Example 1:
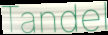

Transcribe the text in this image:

Tandel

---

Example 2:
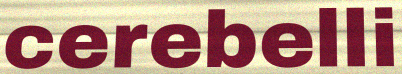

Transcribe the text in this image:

cerebelli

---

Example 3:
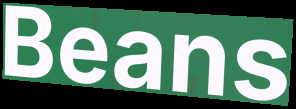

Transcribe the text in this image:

Beans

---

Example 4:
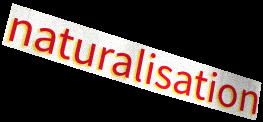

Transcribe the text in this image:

naturalisation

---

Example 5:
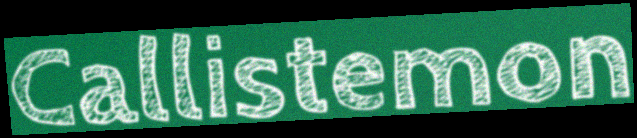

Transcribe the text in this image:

Callistemon